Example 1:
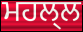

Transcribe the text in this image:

ਮਹਲ੍ਲ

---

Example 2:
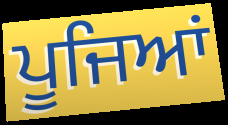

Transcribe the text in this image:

ਪੂਜਿਆਂ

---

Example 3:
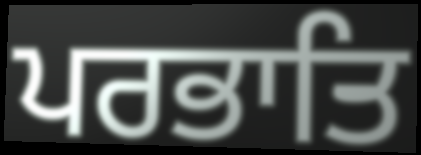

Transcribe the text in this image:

ਪਰਭਾਤਿ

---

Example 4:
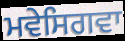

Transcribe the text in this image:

ਮਵੇਸਿਗਵਾ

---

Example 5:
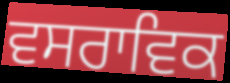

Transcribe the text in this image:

ਵਸਰਾਵਿਕ